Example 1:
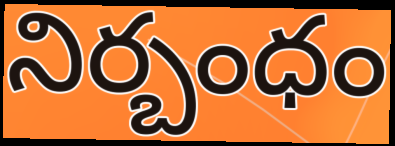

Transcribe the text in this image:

నిర్బంధం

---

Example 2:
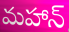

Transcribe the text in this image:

మహాన్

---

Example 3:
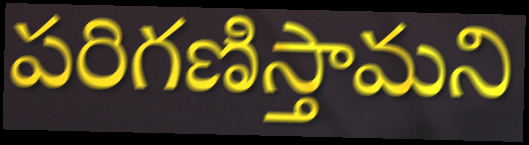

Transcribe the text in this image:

పరిగణిస్తామని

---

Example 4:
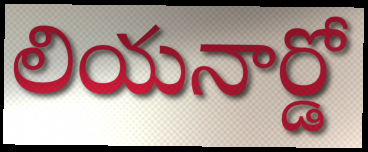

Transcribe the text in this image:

లియనార్డో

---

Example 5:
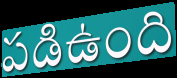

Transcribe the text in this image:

పడిఉంది